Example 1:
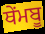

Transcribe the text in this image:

ਥੇਂਮਬੂ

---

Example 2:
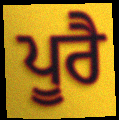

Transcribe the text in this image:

ਪੂਰੈ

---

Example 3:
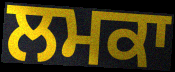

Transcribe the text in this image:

ਲਮਕਾ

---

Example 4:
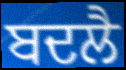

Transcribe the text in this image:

ਬਦਲੈ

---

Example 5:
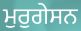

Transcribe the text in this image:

ਮੁਰੁਗੇਸਨ